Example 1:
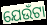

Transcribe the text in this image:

ଯେଉଁଟା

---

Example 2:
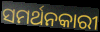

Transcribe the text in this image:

ସମର୍ଥନକାରୀ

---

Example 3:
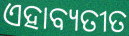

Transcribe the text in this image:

ଏହାବ୍ୟତୀତ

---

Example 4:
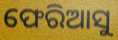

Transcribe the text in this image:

ଫେରିଆସୁ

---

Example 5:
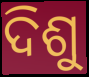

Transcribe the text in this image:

ଦିଶୁ